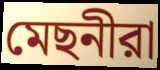
মেছনীরা